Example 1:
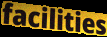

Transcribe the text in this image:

facilities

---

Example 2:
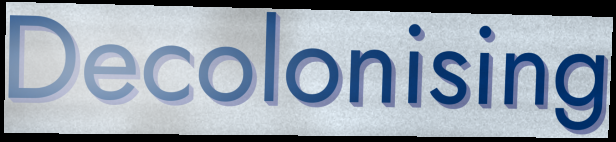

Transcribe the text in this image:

Decolonising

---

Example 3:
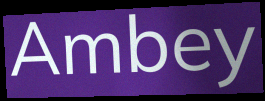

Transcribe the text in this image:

Ambey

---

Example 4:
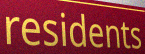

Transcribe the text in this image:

residents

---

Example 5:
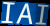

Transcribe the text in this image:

IAI